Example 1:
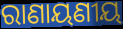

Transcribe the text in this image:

ରାଣାୟଣୀୟ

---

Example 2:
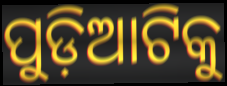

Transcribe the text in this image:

ପୁଡ଼ିଆଟିକୁ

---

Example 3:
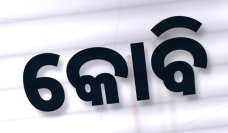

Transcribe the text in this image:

କୋବି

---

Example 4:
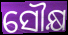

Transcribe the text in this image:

ସୌକ୍ଷ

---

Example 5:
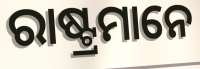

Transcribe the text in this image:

ରାଷ୍ଟ୍ରମାନେ